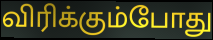
விரிக்கும்போது